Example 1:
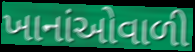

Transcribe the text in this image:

ખાનાંઓવાળી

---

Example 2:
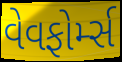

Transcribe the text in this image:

વેવફોર્મ્સ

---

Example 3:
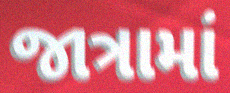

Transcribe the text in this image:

જાત્રામાં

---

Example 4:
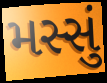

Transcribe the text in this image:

મસ્સું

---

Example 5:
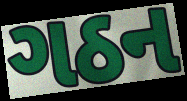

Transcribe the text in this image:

ગઠન